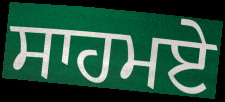
ਸਾਹਮਏ